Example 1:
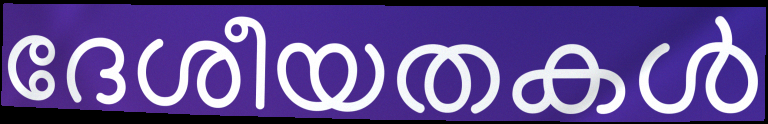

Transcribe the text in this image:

ദേശീയതകൾ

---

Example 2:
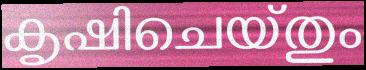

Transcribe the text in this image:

കൃഷിചെയ്തും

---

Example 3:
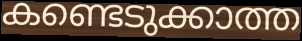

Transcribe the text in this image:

കണ്ടെടുക്കാത്ത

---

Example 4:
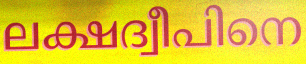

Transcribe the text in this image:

ലക്ഷദ്വീപിനെ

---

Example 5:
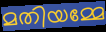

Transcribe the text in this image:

മതിയമ്മേ